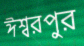
ঈশ্বরপুর